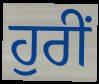
ਹੁਰੀਂ